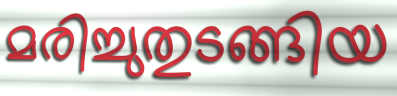
മരിച്ചുതുടങ്ങിയ